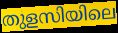
തുളസിയിലെ